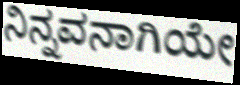
ನಿನ್ನವನಾಗಿಯೇ